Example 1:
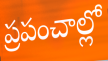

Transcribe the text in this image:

ప్రపంచాల్లో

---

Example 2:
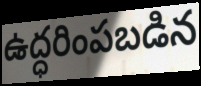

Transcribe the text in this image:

ఉద్ధరింపబడిన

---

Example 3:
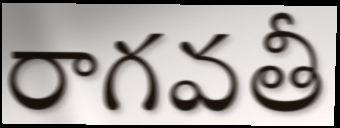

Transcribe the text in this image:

రాగవతీ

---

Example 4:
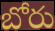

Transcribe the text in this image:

బోరు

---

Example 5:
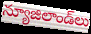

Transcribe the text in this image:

న్యూజిలాండ్‌లు